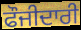
ਫੌਜੀਦਾਰੀ